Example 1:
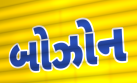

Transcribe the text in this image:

બોઝોન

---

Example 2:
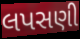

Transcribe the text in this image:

લપસણી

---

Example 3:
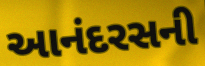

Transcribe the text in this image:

આનંદરસની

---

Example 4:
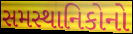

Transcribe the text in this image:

સમસ્થાનિકોનો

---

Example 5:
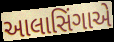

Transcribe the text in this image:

આલાસિંગાએ